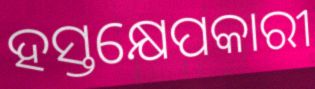
ହସ୍ତକ୍ଷେପକାରୀ